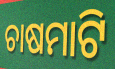
ଚାଷମାଟି